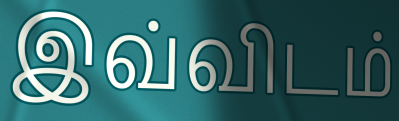
இவ்விடம்